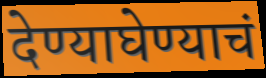
देण्याघेण्याचं